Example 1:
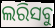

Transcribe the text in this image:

ଲରିସବୁ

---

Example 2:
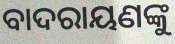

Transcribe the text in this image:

ବାଦରାୟଣଙ୍କୁ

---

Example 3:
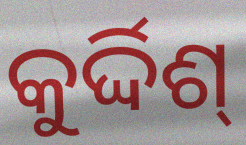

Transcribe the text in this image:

କୁର୍ଦ୍ଦିଶ୍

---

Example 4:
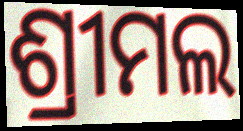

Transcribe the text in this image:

ଶ୍ରୀମଲ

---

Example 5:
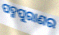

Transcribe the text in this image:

ପଦ୍ମପୁରାଣର